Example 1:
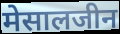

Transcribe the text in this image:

मेसालजीन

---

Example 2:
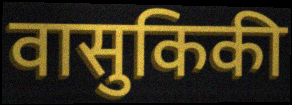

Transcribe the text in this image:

वासुकिकी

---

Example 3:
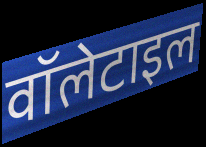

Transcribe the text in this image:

वॉलेटाइल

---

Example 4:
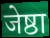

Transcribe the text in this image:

जेष्ठा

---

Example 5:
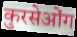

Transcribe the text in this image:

कुरसेओंग